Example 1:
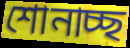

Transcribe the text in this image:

শোনাচ্ছ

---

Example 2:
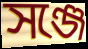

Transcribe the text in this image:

সঞ্জে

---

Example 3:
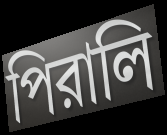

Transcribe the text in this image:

পিরালি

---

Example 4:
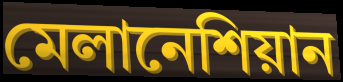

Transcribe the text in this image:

মেলানেশিয়ান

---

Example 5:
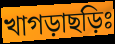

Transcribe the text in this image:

খাগড়াছড়িঃ